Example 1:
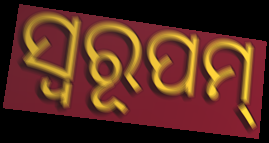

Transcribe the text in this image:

ସ୍ଵରୂପମ୍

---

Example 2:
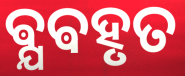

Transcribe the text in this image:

ଵ୍ଯଵହୃତ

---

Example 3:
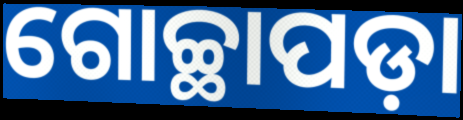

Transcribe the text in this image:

ଗୋଚ୍ଛାପଡ଼ା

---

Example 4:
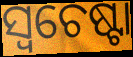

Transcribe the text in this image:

ସ୍ଵଚେଷ୍ଟା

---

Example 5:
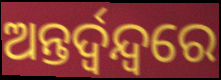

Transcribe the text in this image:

ଅନ୍ତର୍ଦ୍ୱନ୍ଦ୍ୱରେ